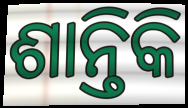
ଶାନ୍ତିକି